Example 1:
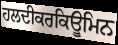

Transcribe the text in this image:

ਹਲਦੀਕਰਕਿਊਮਿਨ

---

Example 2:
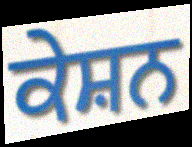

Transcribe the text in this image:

ਕੇਸ਼ਨ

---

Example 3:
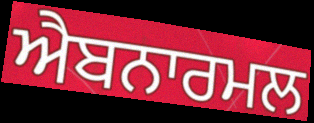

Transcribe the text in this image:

ਐਬਨਾਰਮਲ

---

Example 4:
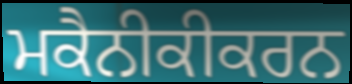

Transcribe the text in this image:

ਮਕੈਨੀਕੀਕਰਨ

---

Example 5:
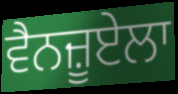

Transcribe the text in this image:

ਵੈਨਜ਼ੂਏਲਾ